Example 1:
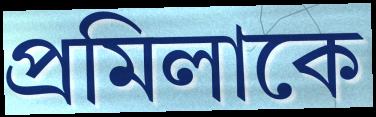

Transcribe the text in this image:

প্রমিলাকে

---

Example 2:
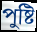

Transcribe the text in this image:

পুষ্টি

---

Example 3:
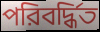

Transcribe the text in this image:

পরিবর্দ্ধিত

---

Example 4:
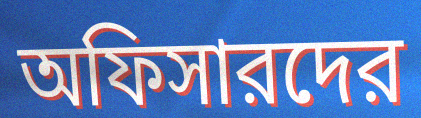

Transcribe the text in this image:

অফিসারদের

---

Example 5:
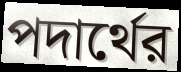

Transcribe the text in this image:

পদার্থের